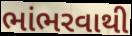
ભાંભરવાથી